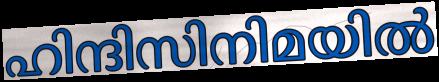
ഹിന്ദിസിനിമയിൽ